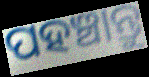
ପହଞ୍ଚାନ୍ତୁ